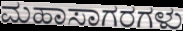
ಮಹಾಸಾಗರಗಳು